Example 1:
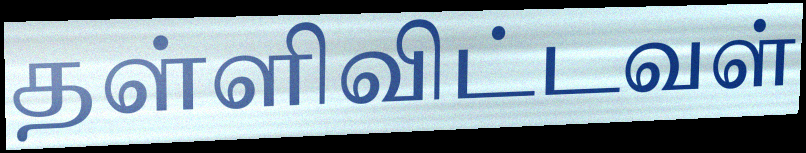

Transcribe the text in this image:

தள்ளிவிட்டவள்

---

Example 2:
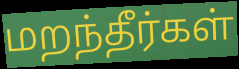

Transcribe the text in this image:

மறந்தீர்கள்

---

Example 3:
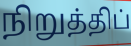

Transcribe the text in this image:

நிறுத்திப்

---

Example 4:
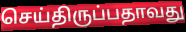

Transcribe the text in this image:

செய்திருப்பதாவது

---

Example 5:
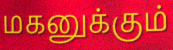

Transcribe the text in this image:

மகனுக்கும்